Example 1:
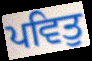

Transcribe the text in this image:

ਪਵਿਤੁ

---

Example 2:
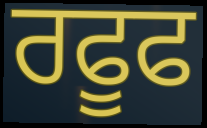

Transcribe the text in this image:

ਰਫੂਫ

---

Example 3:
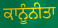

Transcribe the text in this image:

ਕਾਨੂੰਨੀਤਾ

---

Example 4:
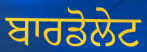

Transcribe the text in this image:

ਬਾਰਡੋਲੇਟ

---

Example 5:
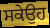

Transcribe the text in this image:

ਸਕੇਉਹ